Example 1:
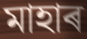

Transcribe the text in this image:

মাহাৰ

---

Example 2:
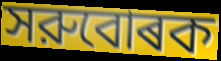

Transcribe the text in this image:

সৰুবোৰক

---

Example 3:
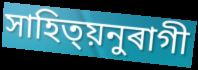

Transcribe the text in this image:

সাহিত্য়নুৰাগী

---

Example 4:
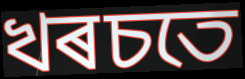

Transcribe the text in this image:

খৰচতে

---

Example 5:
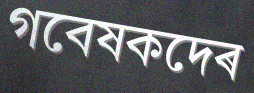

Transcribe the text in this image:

গবেষকদেৰ